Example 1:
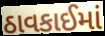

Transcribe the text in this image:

ઠાવકાઈમાં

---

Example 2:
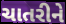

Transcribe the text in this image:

ચાતરીને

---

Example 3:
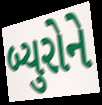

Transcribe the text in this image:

બ્યુરોને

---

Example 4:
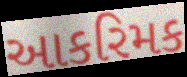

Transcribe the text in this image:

આકરિમક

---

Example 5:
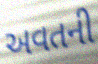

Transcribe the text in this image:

અવતની